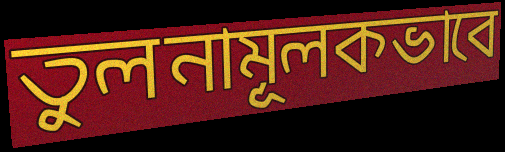
তুলনামূলকভাবে